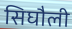
सिघौली